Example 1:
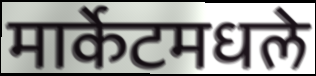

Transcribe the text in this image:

मार्केटमधले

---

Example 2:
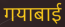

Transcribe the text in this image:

गयाबाई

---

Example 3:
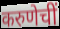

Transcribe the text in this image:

करुणेचीं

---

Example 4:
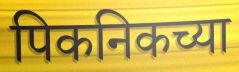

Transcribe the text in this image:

पिकनिकच्या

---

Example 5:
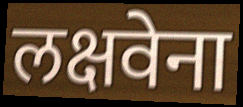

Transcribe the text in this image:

लक्षवेना